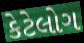
કેટેલોગ